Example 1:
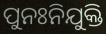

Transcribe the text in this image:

ପୁନଃନିଯୁକ୍ତି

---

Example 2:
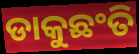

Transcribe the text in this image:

ଡାକୁଛଂତି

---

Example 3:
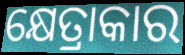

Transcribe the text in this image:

କ୍ଷେତ୍ରାକାର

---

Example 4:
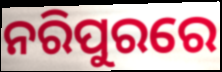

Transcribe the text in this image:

ନରିପୁରରେ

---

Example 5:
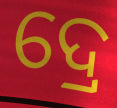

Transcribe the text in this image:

ଦ୍ରେ